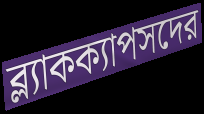
ব্ল্যাকক্যাপসদের